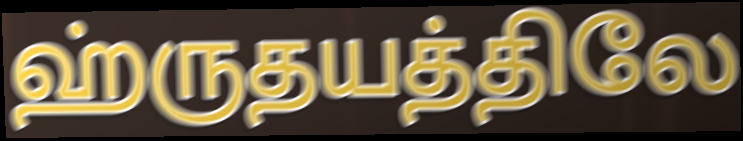
ஹ்ருதயத்திலே